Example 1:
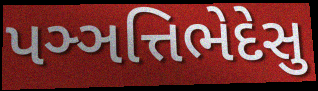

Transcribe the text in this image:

પઞ્ઞત્તિભેદેસુ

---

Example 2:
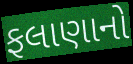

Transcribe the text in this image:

ફલાણાનો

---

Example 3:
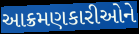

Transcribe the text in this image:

આક્રમણકારીઓને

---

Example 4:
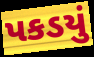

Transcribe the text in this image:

પકડયું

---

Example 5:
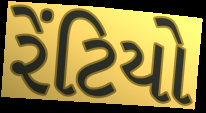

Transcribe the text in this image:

રેંટિયો